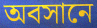
অবসানে